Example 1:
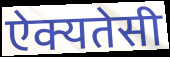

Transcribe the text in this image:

ऐक्यतेसी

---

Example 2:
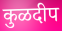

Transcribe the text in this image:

कुळदीप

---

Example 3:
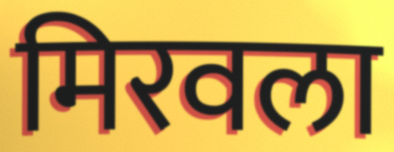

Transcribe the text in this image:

मिरवला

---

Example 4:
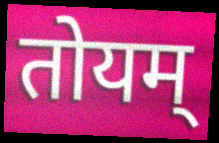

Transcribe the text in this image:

तोयम्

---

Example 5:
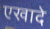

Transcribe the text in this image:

एखादे